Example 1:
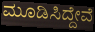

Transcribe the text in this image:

ಮೂಡಿಸಿದ್ದೇವೆ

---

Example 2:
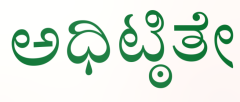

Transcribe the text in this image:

ಅಧಿಟ್ಠಿತೇ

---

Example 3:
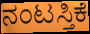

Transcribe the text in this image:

ನಂಟಸ್ತಿಕೆ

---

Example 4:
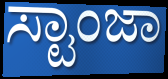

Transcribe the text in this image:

ಸ್ಟಾಂಜಾ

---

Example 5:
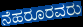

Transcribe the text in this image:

ನೆಹರೂರವರು